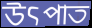
উৎপাত